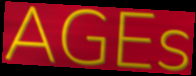
AGEs